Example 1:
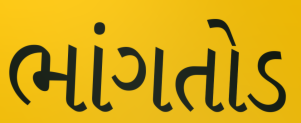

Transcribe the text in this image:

ભાંગતોડ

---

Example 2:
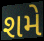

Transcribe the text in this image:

શમે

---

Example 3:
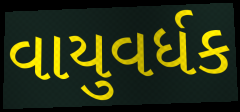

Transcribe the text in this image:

વાયુવર્ધક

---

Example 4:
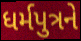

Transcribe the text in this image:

ધર્મપુત્રને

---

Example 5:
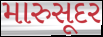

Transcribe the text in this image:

મારુસૂદર